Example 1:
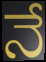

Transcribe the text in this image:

నే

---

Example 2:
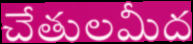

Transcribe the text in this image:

చేతులమీద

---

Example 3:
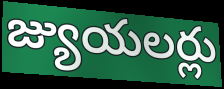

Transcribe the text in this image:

జ్యుయలర్లు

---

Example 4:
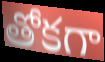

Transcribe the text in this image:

తోకగా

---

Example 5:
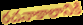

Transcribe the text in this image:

రచనాకాలానికి